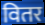
वितर